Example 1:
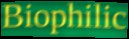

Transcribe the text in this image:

Biophilic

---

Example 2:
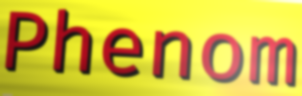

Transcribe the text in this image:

Phenom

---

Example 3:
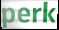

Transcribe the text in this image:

perk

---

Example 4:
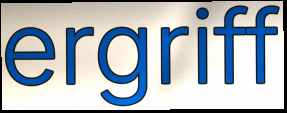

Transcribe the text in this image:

ergriff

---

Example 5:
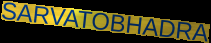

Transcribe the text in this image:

SARVATOBHADRA